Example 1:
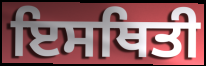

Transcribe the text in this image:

ਇਸਥਿਤੀ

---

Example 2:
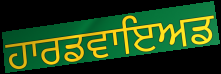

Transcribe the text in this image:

ਹਾਰਡਵਾਇਅਡ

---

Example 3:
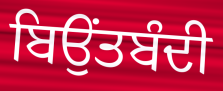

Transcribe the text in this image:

ਬਿਉਂਤਬੰਦੀ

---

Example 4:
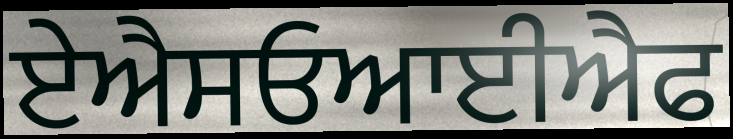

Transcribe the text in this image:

ਏਐਸਓਆਈਐਫ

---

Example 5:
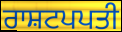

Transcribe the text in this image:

ਰਾਸ਼ਟਪਪਤੀ